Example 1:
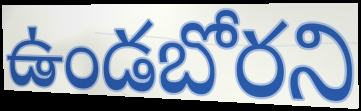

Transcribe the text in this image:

ఉండబోరని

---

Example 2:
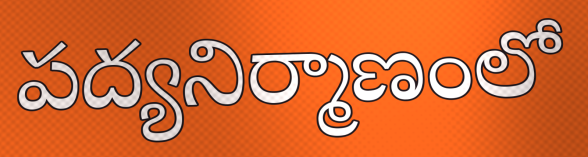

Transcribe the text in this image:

పద్యనిర్మాణంలో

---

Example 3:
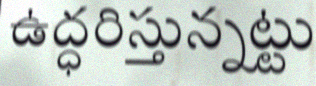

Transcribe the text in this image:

ఉద్ధరిస్తున్నట్టు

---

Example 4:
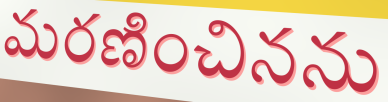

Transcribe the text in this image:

మరణించినను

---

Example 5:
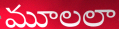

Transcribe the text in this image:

మూలలా